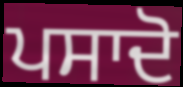
ਪਸਾਦੋ